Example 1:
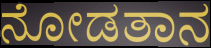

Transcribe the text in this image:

ನೋಡತಾನ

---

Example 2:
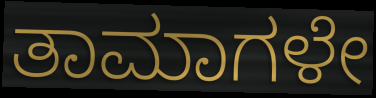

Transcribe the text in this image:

ತಾಮಾಗಳೇ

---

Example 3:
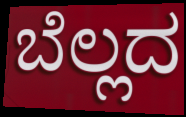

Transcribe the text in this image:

ಬೆಲ್ಲದ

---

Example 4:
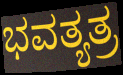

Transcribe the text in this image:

ಭವತ್ಯತ್ರ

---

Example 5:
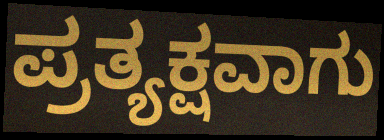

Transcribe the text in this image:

ಪ್ರತ್ಯಕ್ಷವಾಗು